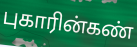
புகாரின்கண்